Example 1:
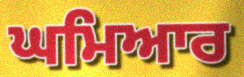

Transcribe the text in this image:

ਘਮਿਆਰ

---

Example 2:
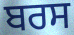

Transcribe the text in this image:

ਬਰਸ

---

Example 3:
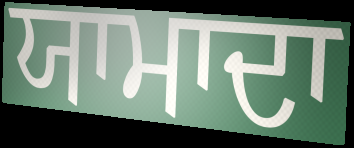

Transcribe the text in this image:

ਯਾਮਾਦਾ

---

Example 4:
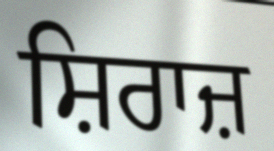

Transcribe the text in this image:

ਸ਼ਿਰਾਜ਼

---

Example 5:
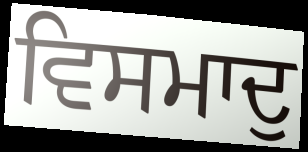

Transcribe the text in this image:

ਵਿਸਮਾਦੁ